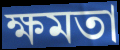
ক্ষমতা